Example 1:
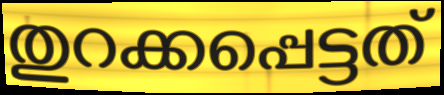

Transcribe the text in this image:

തുറക്കപ്പെട്ടത്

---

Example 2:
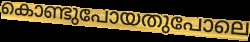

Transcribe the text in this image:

കൊണ്ടുപോയതുപോലെ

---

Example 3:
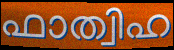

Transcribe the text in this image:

ഫാത്വിഹ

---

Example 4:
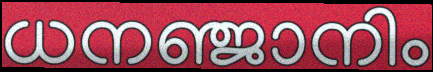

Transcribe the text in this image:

ധനഞ്ജാനിം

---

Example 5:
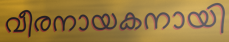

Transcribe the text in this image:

വീരനായകനായി